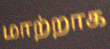
மாற்றாக